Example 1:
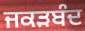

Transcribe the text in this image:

ਜਕੜਬੰਦ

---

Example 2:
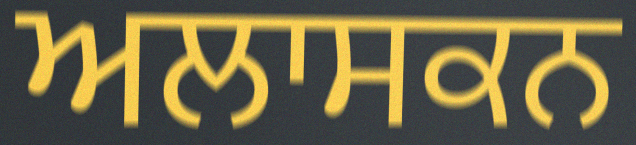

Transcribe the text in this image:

ਅਲਾਸਕਨ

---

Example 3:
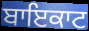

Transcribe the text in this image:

ਬਾਇਕਾਟ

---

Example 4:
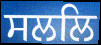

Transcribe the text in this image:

ਸਲਲਿ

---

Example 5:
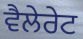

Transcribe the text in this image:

ਵੈਲੇਰੇਟ